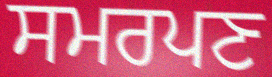
ਸਮਰਪਣ